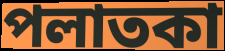
পলাতকা